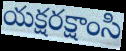
యక్షరక్షాంసి